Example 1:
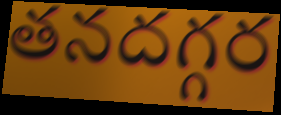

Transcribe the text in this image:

తనదగ్గర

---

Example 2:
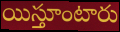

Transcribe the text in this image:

యిస్తూంటారు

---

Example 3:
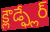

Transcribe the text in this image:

క్లౌడ్ఫ్లేర్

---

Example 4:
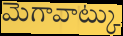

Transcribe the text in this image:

మెగావాట్కు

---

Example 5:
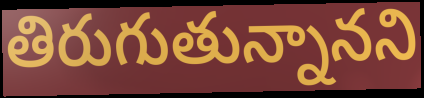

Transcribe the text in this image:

తిరుగుతున్నానని